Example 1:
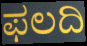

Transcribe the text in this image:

ಫಲದಿ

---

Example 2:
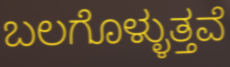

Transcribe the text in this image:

ಬಲಗೊಳ್ಳುತ್ತವೆ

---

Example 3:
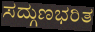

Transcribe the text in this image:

ಸದ್ಗುಣಭರಿತ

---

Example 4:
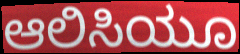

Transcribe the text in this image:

ಆಲಿಸಿಯೂ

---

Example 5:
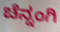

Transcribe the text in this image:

ಚೆನ್ನಂಗಿ